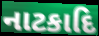
નાટકાદિ